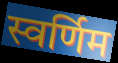
स्‍वर्णिम